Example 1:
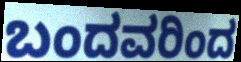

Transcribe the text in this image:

ಬಂದವರಿಂದ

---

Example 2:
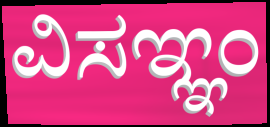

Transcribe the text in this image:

ವಿಸಞ್ಞಂ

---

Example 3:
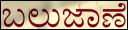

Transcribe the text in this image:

ಬಲುಜಾಣೆ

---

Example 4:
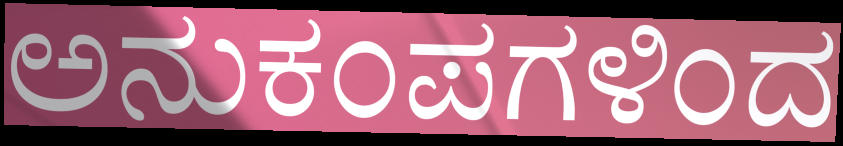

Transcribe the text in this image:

ಅನುಕಂಪಗಳಿಂದ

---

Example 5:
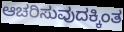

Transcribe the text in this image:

ಆಚರಿಸುವುದಕ್ಕಿಂತ